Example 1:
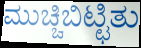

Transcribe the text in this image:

ಮುಚ್ಚಿಬಿಟ್ಟಿತು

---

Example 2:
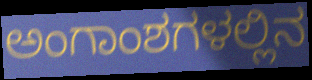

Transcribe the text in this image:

ಅಂಗಾಂಶಗಳಲ್ಲಿನ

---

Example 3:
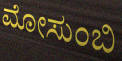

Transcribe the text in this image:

ಮೋಸುಂಬಿ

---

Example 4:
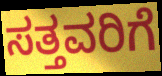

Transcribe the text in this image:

ಸತ್ತವರಿಗೆ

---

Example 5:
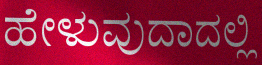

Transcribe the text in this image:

ಹೇಳುವುದಾದಲ್ಲಿ